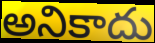
అనికాదు